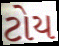
ટોય